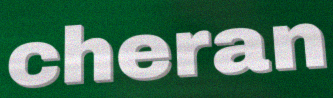
cheran